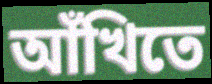
আঁখিতে